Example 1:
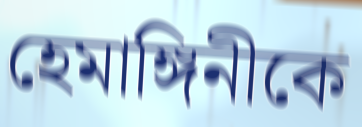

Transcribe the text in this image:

হেমাঙ্গিনীকে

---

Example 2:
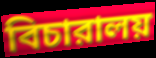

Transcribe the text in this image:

বিচারালয়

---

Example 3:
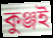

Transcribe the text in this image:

কুঞ্জই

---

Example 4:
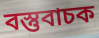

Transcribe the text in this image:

বস্তুবাচক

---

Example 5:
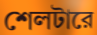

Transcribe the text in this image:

শেলটারে